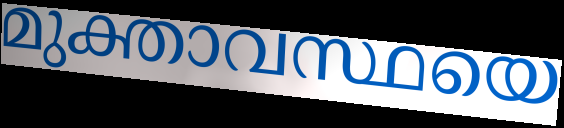
മുക്താവസ്ഥയെ